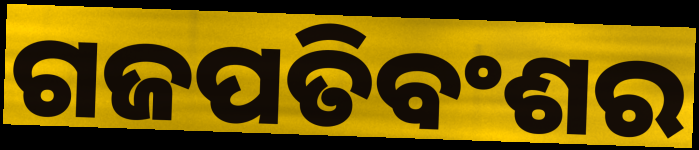
ଗଜପତିବଂଶର